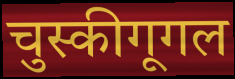
चुस्कीगूगल